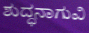
ಶುದ್ಧನಾಗುವಿ